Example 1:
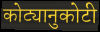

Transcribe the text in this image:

कोट्यानुकोटी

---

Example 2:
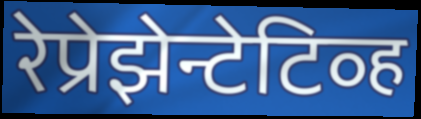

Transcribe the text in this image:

रेप्रेझेन्टेटिव्ह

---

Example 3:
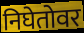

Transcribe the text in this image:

निघेतोवर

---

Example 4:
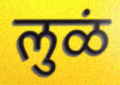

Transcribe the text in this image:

लुळं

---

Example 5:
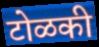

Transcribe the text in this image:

टोळकी